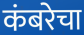
कंबरेचा